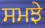
ਸਮਝੇ